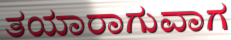
ತಯಾರಾಗುವಾಗ